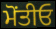
ਮੋਂਤੀਓ